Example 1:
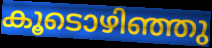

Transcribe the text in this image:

കൂടൊഴിഞ്ഞു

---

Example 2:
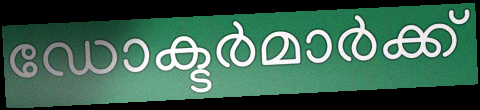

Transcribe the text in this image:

ഡോക്ടർമാർക്ക്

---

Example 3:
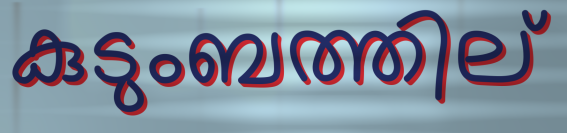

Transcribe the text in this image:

കുടുംബത്തില്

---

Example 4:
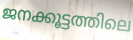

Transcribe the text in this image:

ജനക്കൂട്ടത്തിലെ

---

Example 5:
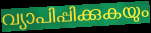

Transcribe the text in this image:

വ്യാപിപ്പിക്കുകയും